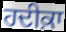
ਹਦੀਕ਼ਾ